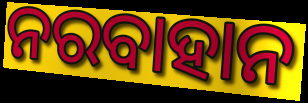
ନରବାହାନ